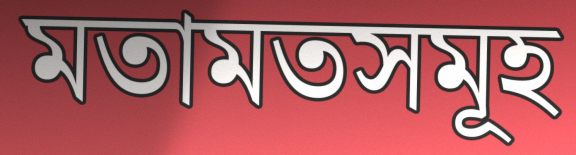
মতামতসমূহ